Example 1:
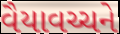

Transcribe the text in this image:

વૈયાવચ્ચને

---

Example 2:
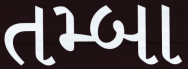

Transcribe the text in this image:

તમ્બા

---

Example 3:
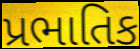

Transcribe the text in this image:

પ્રભાતિક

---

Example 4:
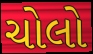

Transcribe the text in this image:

ચોલો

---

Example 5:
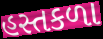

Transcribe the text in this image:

હસ્તકળા